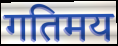
गतिमय